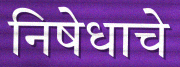
निषेधाचे